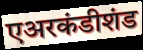
एअरकंडीशंड